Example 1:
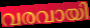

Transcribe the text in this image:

വരവായി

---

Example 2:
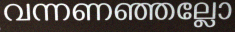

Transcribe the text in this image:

വന്നണഞ്ഞല്ലോ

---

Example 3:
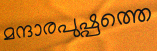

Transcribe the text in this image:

മന്ദാരപുഷ്പത്തെ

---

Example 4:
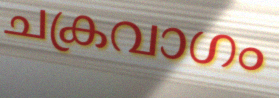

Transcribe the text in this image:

ചക്രവാഗം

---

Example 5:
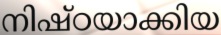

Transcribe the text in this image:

നിഷ്ഠയാക്കിയ